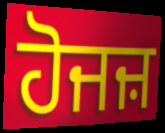
ਹੋਜਜ਼